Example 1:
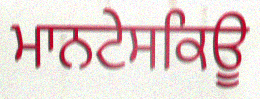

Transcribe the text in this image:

ਮਾਨਟੇਸਕਿਊ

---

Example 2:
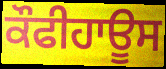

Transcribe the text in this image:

ਕੌਫੀਹਾਊਸ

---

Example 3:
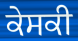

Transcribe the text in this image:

ਕੇਸਕੀ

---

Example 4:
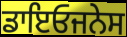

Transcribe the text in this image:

ਡਾਇਓਜਨੇਸ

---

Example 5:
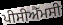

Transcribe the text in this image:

ਪੀਸੀਐੱਮਸੀ